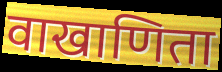
वाखाणिता